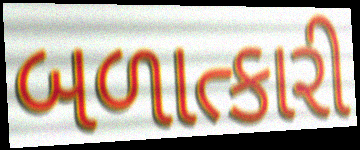
બળાત્કારી